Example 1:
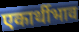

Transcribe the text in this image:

एकार्थीभाव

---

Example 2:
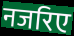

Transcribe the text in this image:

नजरिए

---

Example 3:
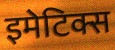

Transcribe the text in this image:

इमेटिक्स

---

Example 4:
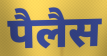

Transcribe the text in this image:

पैलैस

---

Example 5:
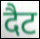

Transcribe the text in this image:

दैट